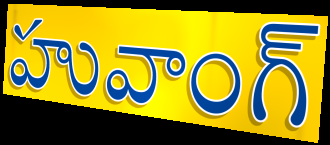
హువాంగ్